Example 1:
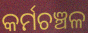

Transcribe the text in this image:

କର୍ମଚଞ୍ଚଳ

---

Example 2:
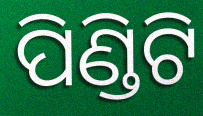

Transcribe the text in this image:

ପିଣ୍ଡିଟି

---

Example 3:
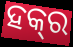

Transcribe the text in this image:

ହକ୍‌ର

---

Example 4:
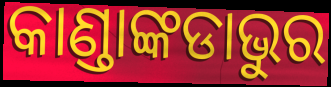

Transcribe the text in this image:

କାଣ୍ଡାଙ୍କଡାଭୁର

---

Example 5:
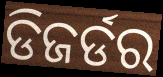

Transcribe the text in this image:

ଡିଜର୍ଡର